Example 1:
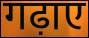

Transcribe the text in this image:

गढ़ाए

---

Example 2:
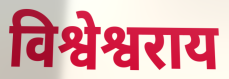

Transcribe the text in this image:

विश्वेश्वराय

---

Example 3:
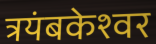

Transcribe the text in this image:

त्रयंबकेश्वर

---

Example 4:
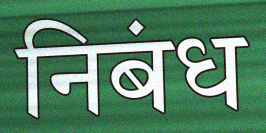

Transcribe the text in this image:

निबंध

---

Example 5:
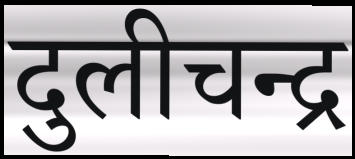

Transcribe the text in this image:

दुलीचन्द्र